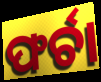
ଫର୍ଚା